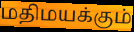
மதிமயக்கும்